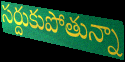
సర్దుకుపోతున్నా